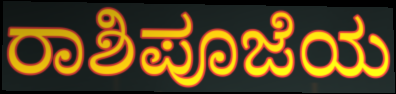
ರಾಶಿಪೂಜೆಯ